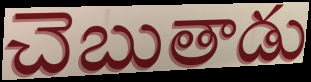
చెబుతాడు